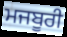
ਮਜਬੂਰੀ